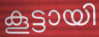
കൂട്ടായി